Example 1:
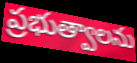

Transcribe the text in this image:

ప్రభుత్వాలను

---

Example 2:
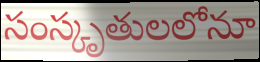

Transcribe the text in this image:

సంస్కృతులలోనూ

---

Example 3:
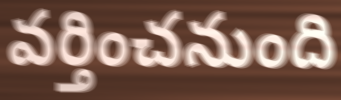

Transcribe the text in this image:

వర్తించనుంది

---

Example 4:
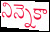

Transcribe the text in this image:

నిన్నెకా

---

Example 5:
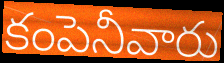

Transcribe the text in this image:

కంపెనీవారు